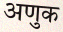
अणुक